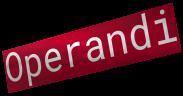
Operandi